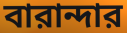
বারান্দার